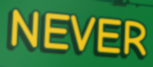
NEVER